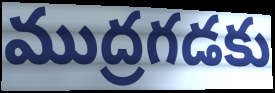
ముద్రగడకు